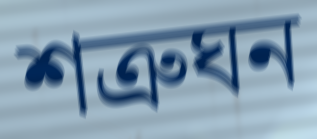
শত্ৰুঘন